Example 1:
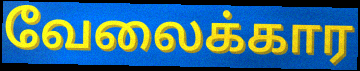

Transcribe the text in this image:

வேலைக்கார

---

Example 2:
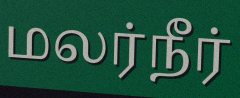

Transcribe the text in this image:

மலர்நீர்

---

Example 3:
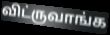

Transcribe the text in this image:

விட்ருவாங்க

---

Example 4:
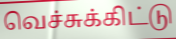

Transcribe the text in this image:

வெச்சுக்கிட்டு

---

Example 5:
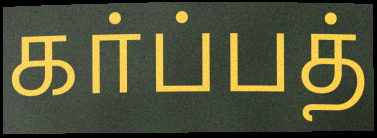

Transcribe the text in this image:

கர்ப்பத்